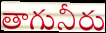
తాగునీరు